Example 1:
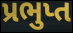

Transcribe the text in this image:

પ્રભુપ્ત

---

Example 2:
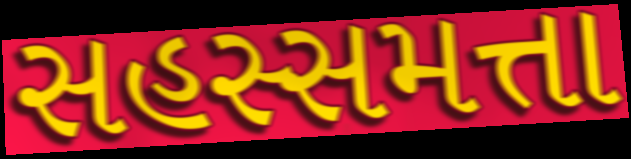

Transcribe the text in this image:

સહસ્સમત્તા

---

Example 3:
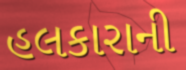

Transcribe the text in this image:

હલકારાની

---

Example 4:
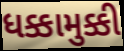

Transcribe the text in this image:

ધક્કામુક્કી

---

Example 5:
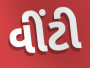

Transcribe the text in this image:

વીંટી